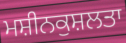
ਮਸ਼ੀਨਕੁਸ਼ਲਤਾ